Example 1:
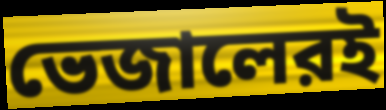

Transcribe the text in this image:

ভেজালেরই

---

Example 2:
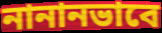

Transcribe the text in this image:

নানানভাবে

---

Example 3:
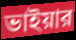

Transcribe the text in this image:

ভাইয়ার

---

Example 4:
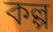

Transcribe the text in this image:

কল্প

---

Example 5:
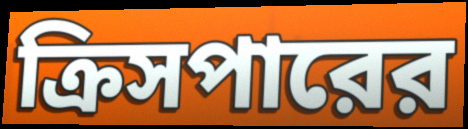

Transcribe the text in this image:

ক্রিসপারের